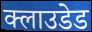
क्लाउडेड